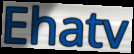
Ehatv